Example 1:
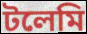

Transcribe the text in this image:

টলেমি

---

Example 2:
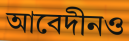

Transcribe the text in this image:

আবেদীনও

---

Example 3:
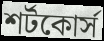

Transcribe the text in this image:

শর্টকোর্স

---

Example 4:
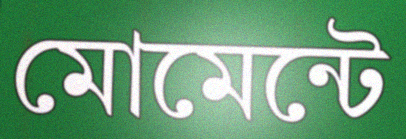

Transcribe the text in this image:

মোমেন্টে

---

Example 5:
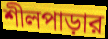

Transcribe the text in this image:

শীলপাড়ার